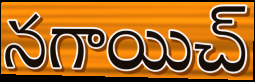
నగాయిచ్